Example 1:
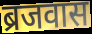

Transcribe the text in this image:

ब्रजवास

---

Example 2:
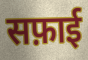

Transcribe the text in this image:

सफ़ाई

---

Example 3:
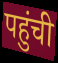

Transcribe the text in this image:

पहुंची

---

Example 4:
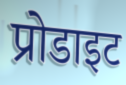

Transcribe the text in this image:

प्रोडाइट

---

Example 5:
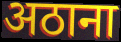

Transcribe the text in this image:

अठाना